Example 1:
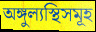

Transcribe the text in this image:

অঙ্গুল্যস্থিসমূহ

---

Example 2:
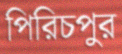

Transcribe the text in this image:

পিরিচপুর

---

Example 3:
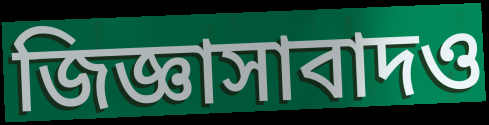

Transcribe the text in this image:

জিজ্ঞাসাবাদও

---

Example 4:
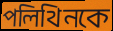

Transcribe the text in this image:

পলিথিনকে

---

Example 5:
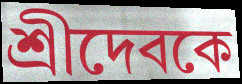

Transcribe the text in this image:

শ্রীদেবকে